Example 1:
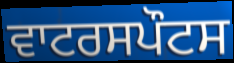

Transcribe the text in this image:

ਵਾਟਰਸਪੌਟਸ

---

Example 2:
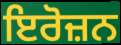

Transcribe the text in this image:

ਇਰੋਜ਼ਨ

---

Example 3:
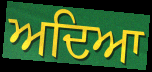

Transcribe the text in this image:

ਅਦਿਆ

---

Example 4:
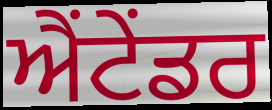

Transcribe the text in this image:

ਐਂਟੇਂਡਰ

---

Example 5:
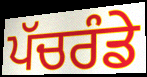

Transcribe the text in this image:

ਪੱਚਰੰਡੇ